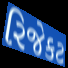
રિજેકટ